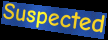
Suspected